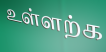
உள்ளற்க